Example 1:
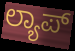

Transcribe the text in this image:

ಲ್ಯಾಪ್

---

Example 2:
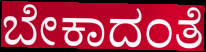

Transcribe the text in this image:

ಬೇಕಾದಂತೆ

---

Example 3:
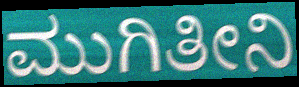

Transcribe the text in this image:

ಮುಗಿತೀನಿ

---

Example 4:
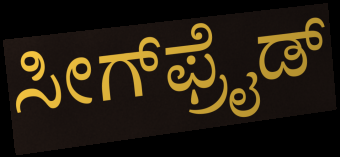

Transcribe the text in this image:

ಸೀಗ್‌ಫ್ರೈಡ್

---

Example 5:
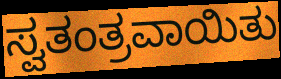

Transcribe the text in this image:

ಸ್ವತಂತ್ರವಾಯಿತು